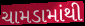
ચામડામાંથી